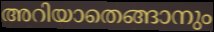
അറിയാതെങ്ങാനും